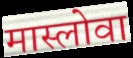
मास्लोवा